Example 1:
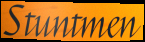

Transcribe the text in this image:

Stuntmen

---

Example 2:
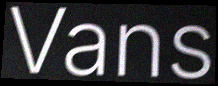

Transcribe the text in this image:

Vans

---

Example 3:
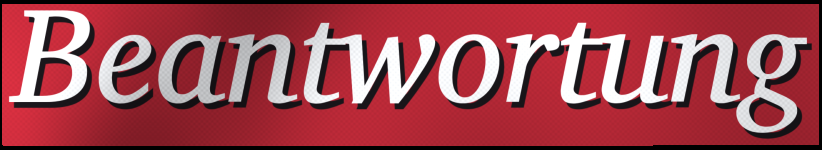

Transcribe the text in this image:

Beantwortung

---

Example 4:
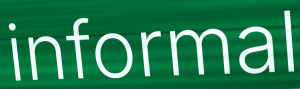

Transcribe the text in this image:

informal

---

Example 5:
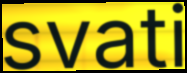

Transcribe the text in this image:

svati